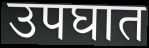
उपघात